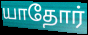
யாதோர்